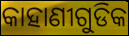
କାହାଣୀଗୁଡିକ